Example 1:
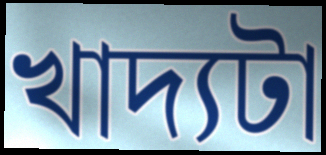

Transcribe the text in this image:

খাদ্যটা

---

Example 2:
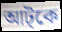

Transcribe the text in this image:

আট্কে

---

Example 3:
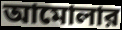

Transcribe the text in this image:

আমোলার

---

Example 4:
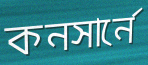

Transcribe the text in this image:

কনসার্নে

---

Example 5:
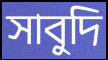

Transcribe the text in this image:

সাবুদি